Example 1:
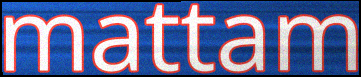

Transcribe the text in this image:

mattam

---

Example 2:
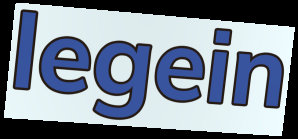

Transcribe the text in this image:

legein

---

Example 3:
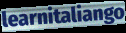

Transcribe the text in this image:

learnitaliango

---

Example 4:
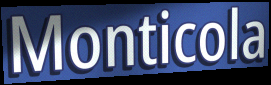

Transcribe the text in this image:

Monticola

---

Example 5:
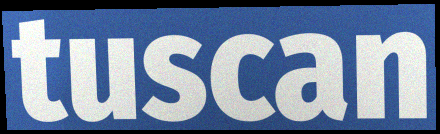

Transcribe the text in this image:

tuscan